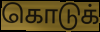
கொடுக்